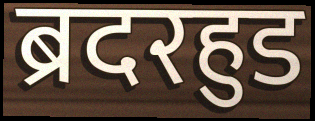
ब्रदरहुड